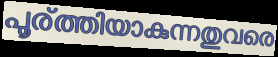
പൂര്ത്തിയാകുന്നതുവരെ